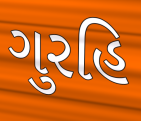
ગુરહિ